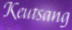
Keutsang